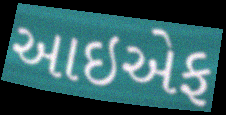
આઇએફ